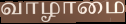
வாழாமை